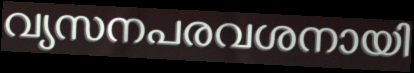
വ്യസനപരവശനായി